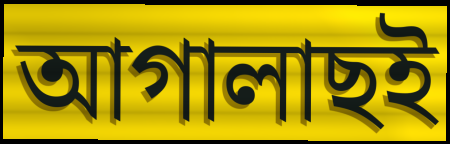
আগালাছই